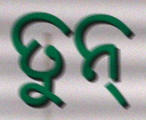
ତୁନ୍